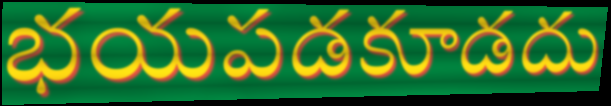
భయపడకూడదు